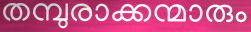
തമ്പുരാക്കന്മാരും